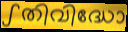
ഽതിവിദ്ധോ